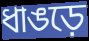
ধাঙড়ে